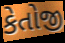
કેતોજી